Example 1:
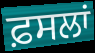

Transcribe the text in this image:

ਫ਼ਸਲਾਂ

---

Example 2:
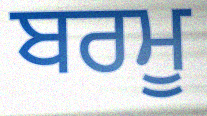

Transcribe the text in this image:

ਬਰਮੂ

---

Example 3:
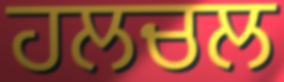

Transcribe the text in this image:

ਹਲਚਲ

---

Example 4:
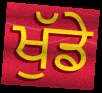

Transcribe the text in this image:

ਖੁੱਡੇ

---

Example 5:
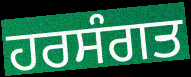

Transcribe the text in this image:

ਹਰਸੰਗਤ